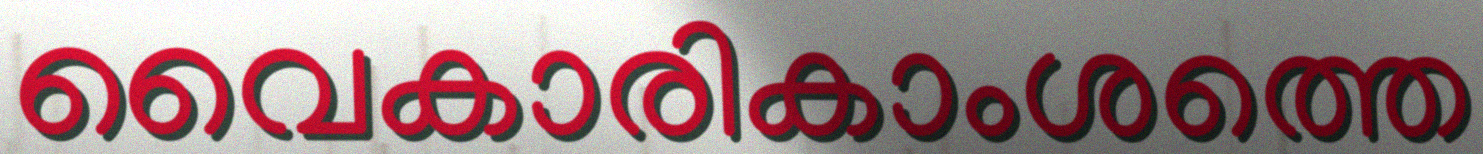
വൈകാരികാംശത്തെ